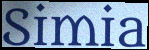
Simia